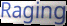
Raging